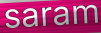
saram